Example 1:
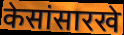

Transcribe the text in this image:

केसांसारखे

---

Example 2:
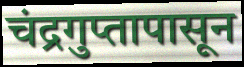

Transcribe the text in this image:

चंद्रगुप्तापासून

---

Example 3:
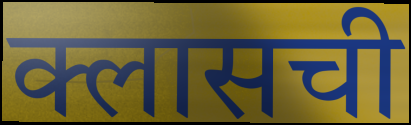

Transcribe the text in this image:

क्‍लासची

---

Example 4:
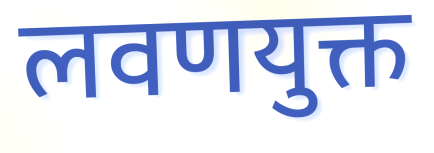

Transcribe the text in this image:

लवणयुक्त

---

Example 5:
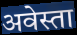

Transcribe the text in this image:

अवेस्ता